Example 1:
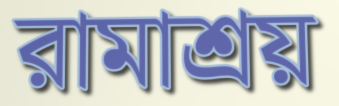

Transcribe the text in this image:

রামাশ্রয়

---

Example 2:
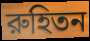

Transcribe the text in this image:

রুহিতন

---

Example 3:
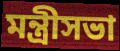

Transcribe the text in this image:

মন্ত্রীসভা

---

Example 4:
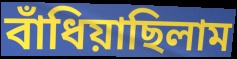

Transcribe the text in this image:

বাঁধিয়াছিলাম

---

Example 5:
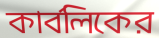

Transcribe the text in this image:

কার্বলিকের